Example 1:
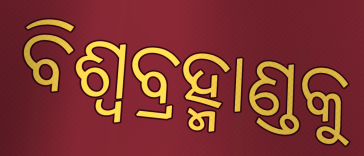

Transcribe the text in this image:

ବିଶ୍ବବ୍ରହ୍ମାଣ୍ଡକୁ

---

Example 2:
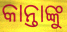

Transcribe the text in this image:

କାନ୍ତାଙ୍କୁ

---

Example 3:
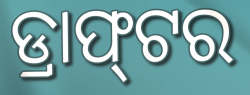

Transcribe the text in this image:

ଡ୍ରାଫ୍‌ଟର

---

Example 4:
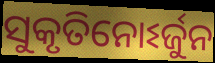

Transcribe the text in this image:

ସୁକୃତିନୋଽର୍ଜୁନ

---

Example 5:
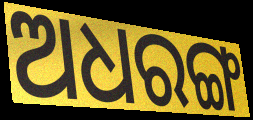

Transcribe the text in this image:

ଅଧରଙ୍ଗ